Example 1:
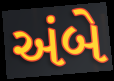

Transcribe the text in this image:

અંબે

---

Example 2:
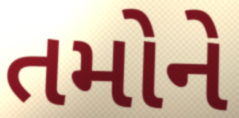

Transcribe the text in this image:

તમોને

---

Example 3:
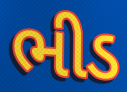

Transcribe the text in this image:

ભીડ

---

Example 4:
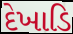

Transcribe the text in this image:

દેખાડિ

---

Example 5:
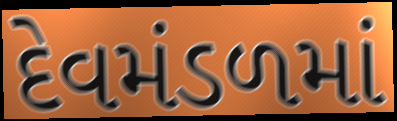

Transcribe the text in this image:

દેવમંડળમાં